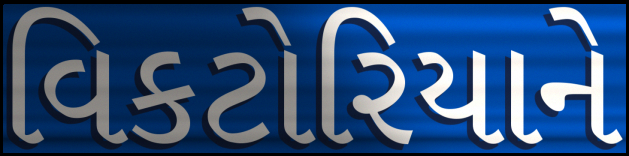
વિકટોરિયાને